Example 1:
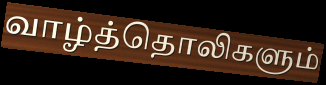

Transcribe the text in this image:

வாழ்த்தொலிகளும்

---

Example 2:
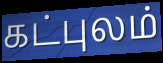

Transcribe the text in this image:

கட்புலம்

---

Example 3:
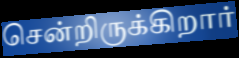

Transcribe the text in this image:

சென்றிருக்கிறார்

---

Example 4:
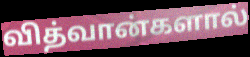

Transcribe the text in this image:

வித்வான்களால்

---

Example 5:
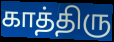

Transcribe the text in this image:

காத்திரு